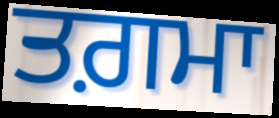
ਤਗ਼ਮਾ